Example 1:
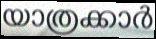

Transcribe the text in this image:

യാത്രക്കാർ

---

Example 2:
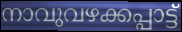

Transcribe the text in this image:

നാവുവഴക്കപ്പാട്ട്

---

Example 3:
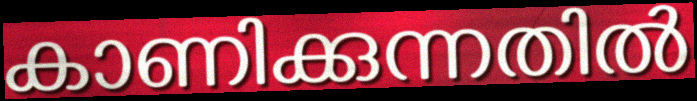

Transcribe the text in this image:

കാണിക്കുന്നതിൽ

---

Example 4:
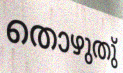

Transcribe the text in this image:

തൊഴുതു്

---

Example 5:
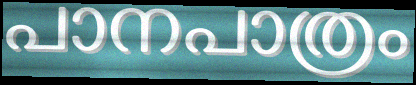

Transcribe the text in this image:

പാനപാത്രം